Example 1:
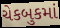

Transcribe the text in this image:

ચેકબુકમાં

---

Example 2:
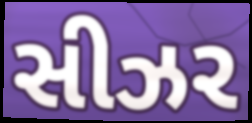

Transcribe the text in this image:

સીઝર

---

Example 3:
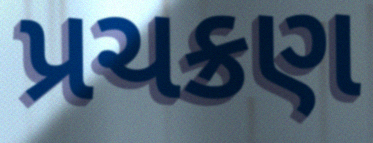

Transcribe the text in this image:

પ્રચક્રણ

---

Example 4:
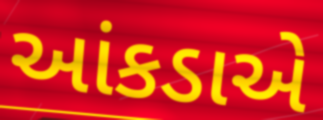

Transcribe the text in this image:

આંકડાએ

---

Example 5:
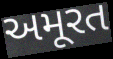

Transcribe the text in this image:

અમૂરત